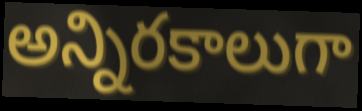
అన్నిరకాలుగా